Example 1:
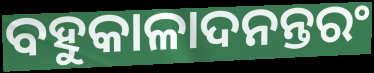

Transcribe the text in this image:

ବହୁକାଳାଦନନ୍ତରଂ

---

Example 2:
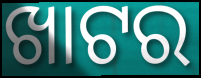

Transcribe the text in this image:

ଖାଟର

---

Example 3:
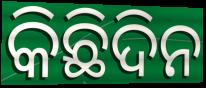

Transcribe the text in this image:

କିଛିଦିନ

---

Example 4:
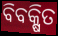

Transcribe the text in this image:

ବିବକ୍ଷିତ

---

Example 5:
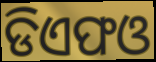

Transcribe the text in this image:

ଡିଏଫଓ